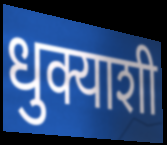
धुक्याशी